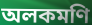
অলকমণি